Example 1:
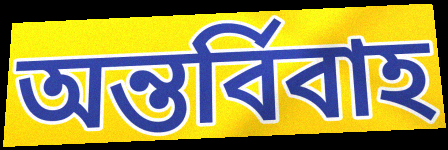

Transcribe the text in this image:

অন্তর্বিবাহ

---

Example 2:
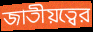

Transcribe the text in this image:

জাতীয়ত্বের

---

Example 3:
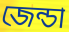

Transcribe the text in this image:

জেন্ডা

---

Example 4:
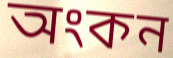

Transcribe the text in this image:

অংকন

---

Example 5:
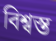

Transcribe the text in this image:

বিশ্বস্ত